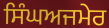
ਸਿੰਘਅਜਮੇਰ